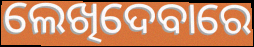
ଲେଖିଦେବାରେ